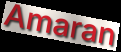
Amaran